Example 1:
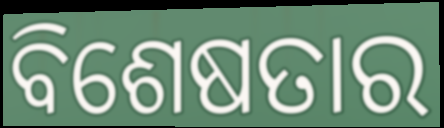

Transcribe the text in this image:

ବିଶେଷତାର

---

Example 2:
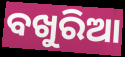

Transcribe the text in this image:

ବଖୁରିଆ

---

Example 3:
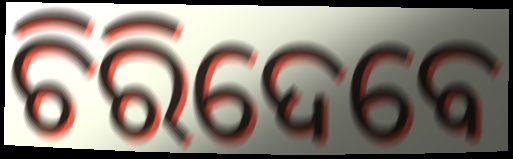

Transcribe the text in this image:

ଚିରିଦେବେ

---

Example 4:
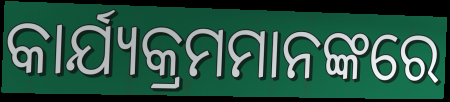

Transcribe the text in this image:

କାର୍ଯ୍ୟକ୍ରମମାନଙ୍କରେ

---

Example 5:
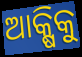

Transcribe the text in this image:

ଆକ୍ଷିକୁ